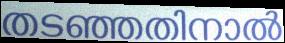
തടഞ്ഞതിനാൽ